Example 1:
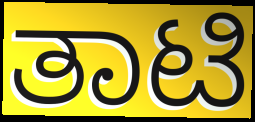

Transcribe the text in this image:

ತಾಟಿ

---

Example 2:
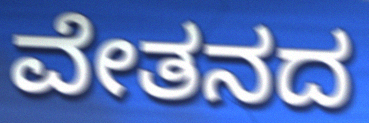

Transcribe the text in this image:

ವೇತನದ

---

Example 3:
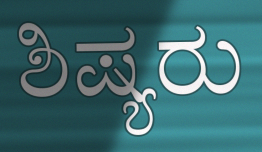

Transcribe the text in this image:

ಶಿಷ್ಯರು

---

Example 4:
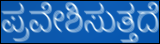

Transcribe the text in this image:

ಪ್ರವೇಶಿಸುತ್ತದೆ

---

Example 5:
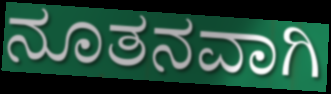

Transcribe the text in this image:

ನೂತನವಾಗಿ